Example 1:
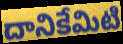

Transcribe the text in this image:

దానికేమిటి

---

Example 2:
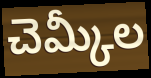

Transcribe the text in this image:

చెమ్కీల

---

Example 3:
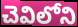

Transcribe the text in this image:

చెవిలోని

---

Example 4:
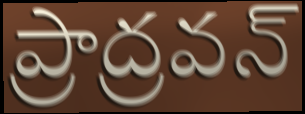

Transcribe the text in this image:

ప్రాద్రవన్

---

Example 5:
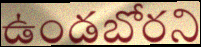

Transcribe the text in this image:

ఉండబోరని